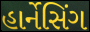
હાર્નેસિંગ